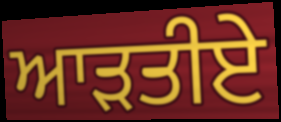
ਆੜਤੀਏ